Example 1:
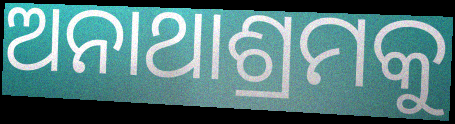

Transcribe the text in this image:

ଅନାଥାଶ୍ରମକୁ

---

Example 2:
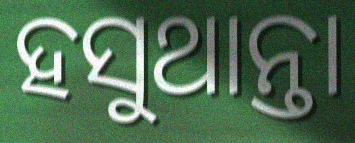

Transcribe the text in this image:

ହସୁଥାନ୍ତା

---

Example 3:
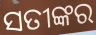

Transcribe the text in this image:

ସତୀଙ୍କର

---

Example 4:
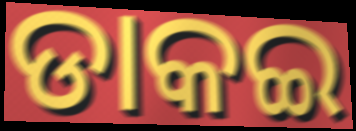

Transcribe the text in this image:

ଡାକଇ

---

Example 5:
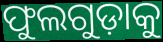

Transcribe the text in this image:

ଫୁଲଗୁଡ଼ାକୁ